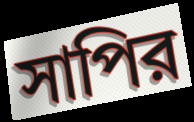
সাপির